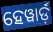
ହେୱାର୍ଡ଼